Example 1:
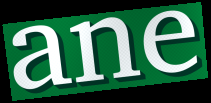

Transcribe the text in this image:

ane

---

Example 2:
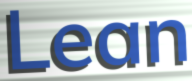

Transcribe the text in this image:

Lean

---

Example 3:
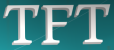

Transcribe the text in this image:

TFT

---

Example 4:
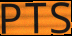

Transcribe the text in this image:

PTS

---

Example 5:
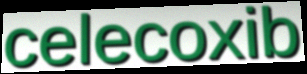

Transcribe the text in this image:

celecoxib